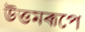
উত্তমৰূপে